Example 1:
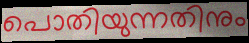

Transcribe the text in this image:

പൊതിയുന്നതിനും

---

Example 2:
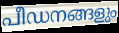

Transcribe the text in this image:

പീഡനങ്ങളും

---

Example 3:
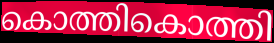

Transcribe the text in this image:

കൊത്തികൊത്തി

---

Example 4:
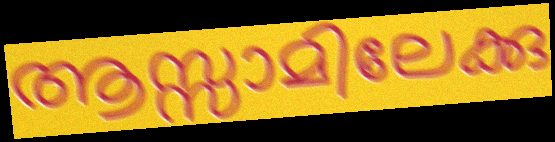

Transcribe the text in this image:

ആസ്സാമിലേക്കു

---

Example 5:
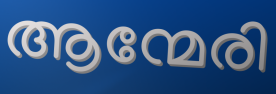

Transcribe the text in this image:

ആന്മേരി